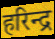
हरिन्द्र